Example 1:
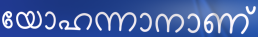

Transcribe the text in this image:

യോഹന്നാനാണ്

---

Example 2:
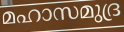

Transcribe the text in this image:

മഹാസമുദ്ര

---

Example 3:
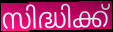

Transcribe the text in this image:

സിദ്ധിക്ക്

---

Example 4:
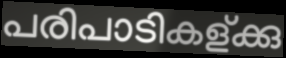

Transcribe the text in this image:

പരിപാടികള്ക്കു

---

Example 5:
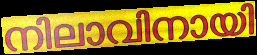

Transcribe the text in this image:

നിലാവിനായി